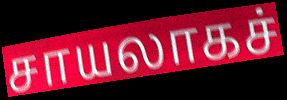
சாயலாகச்